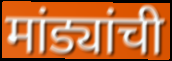
मांड्यांची